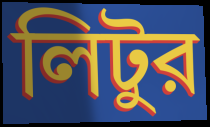
লিটুর